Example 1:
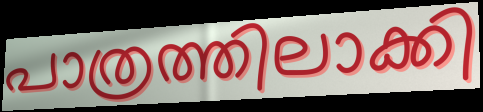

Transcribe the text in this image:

പാത്രത്തിലാക്കി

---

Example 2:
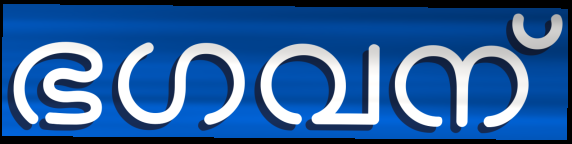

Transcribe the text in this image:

ഭഗവന്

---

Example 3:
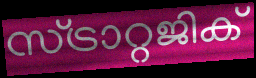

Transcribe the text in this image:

സ്ട്രാറ്റജിക്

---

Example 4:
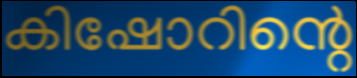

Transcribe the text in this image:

കിഷോറിന്റെ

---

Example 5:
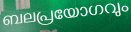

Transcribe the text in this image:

ബലപ്രയോഗവും